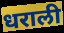
धराली